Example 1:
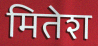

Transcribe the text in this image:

मितेश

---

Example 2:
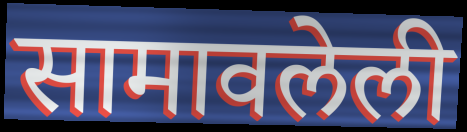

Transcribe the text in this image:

सामावलेली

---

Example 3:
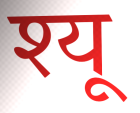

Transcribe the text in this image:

श्यू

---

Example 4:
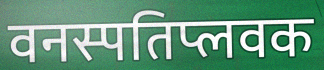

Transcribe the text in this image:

वनस्पतिप्लवक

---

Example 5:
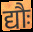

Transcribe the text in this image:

द्यौः